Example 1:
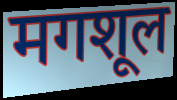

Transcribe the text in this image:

मगशूल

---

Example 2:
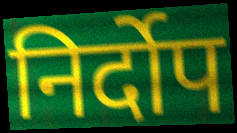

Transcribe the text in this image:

निर्दोप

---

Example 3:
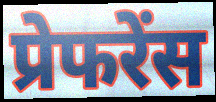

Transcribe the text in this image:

प्रेफरेंस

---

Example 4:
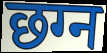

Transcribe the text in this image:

छग्न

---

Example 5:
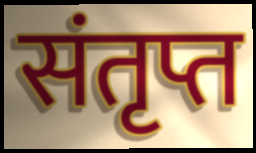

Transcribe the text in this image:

संतृप्त